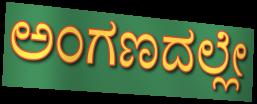
ಅಂಗಣದಲ್ಲೇ